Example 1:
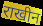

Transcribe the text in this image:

राखीन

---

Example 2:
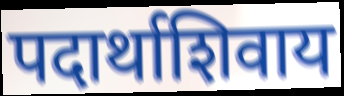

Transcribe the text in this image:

पदार्थाशिवाय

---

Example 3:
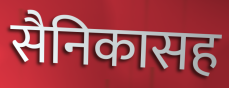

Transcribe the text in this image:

सैनिकासह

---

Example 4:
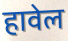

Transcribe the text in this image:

हावेल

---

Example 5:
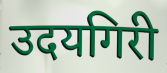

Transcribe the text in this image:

उदयगिरी